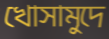
খোসামুদে